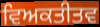
ਵਿਅਕਤੀਤਵ